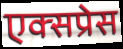
एक्‍सप्रेस